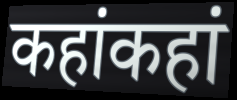
कहांकहां